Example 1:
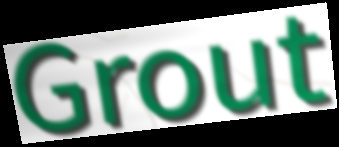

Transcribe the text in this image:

Grout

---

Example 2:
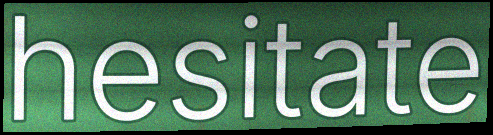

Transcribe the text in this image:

hesitate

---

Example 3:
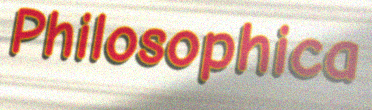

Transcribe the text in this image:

Philosophica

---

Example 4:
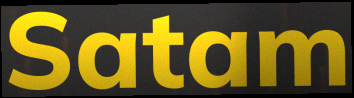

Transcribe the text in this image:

Satam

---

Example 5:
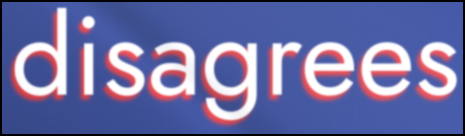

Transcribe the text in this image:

disagrees